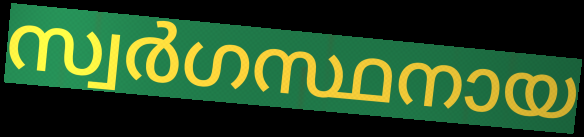
സ്വർഗസ്ഥനായ